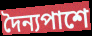
দৈন্যপাশে